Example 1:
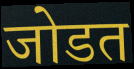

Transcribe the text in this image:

जोडत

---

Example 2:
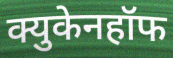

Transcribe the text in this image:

क्युकेनहॉफ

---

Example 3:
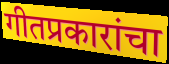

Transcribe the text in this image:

गीतप्रकारांचा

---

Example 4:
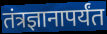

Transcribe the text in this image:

तंत्रज्ञानापर्यंत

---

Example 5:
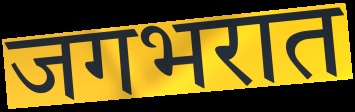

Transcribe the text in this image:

जगभरात